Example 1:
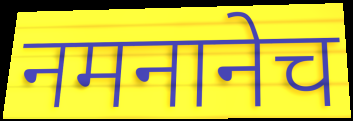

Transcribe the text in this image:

नमनानेच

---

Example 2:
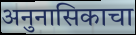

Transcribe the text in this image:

अनुनासिकाचा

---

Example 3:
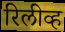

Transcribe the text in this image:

रिलीव्ह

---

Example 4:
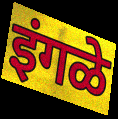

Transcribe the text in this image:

इंगळे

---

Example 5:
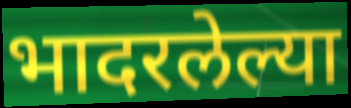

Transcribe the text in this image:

भादरलेल्या